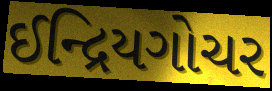
ઈન્દ્રિયગોચર